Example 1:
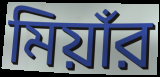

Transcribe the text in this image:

মিয়াঁর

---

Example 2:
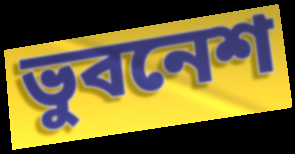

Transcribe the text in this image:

ভুবনেশ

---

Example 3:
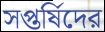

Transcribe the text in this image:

সপ্তর্ষিদের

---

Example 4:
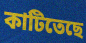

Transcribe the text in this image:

কাটিতেছে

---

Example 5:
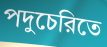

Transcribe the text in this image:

পদুচেরিতে